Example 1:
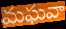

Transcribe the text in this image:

మఘవా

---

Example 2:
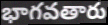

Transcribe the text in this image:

భాగవతారు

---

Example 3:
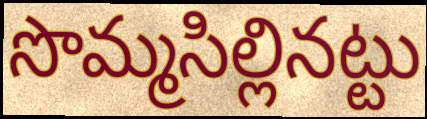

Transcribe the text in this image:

సొమ్మసిల్లినట్టు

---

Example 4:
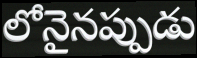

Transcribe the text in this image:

లోనైనప్పుడు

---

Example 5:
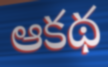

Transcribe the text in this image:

ఆకథ